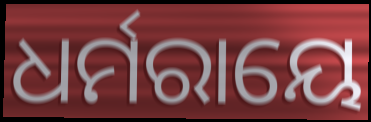
ଧର୍ମରାୟେ